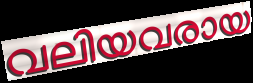
വലിയവരായ